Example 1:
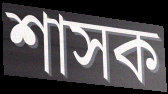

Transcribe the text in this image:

শাসক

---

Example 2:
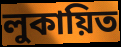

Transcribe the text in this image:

লুকায়িত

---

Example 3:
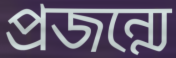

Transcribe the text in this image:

প্রজন্মে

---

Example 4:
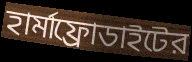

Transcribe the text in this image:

হার্মাফ্রোডাইটের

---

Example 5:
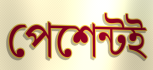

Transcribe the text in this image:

পেশেন্টই